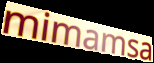
mimamsa